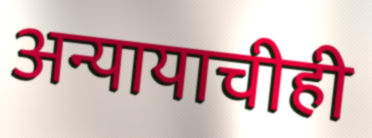
अन्यायाचीही